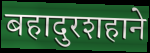
बहादुरशहाने